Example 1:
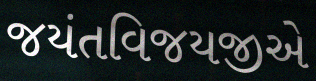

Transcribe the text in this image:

જયંતવિજયજીએ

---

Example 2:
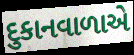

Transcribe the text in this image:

દુકાનવાળાએ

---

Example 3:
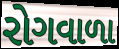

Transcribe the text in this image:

રોગવાળા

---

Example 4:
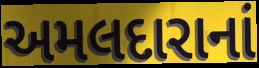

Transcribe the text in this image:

અમલદારાનાં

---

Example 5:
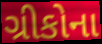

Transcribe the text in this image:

ગ્રીકોના